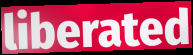
liberated